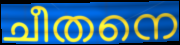
ചീതനെ